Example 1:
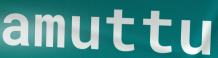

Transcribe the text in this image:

amuttu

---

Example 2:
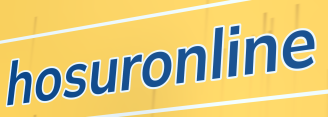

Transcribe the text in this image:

hosuronline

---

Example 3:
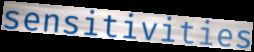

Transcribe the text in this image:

sensitivities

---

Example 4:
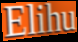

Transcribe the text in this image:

Elihu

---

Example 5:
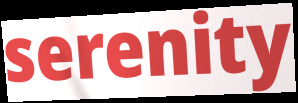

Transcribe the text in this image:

serenity